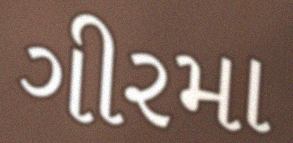
ગીરમા